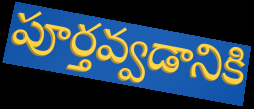
పూర్తవ్వడానికి